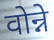
वोन्ने